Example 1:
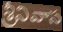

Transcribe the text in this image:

శ్రీనివాస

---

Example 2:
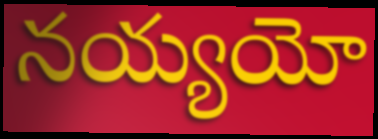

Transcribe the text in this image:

నయ్యయో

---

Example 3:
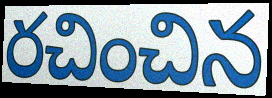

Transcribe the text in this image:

రచించిన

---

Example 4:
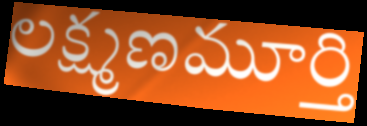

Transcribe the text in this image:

లక్ష్మణమూర్తి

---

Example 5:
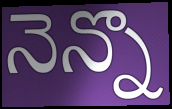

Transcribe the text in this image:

నెన్నొ